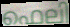
ഫെലി